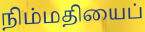
நிம்மதியைப்